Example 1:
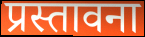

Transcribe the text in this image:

प्रस्तावना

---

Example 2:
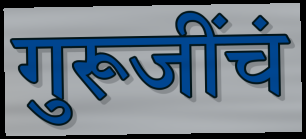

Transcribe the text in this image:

गुरूजींचं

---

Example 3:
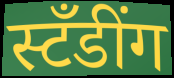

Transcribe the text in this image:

स्टँडींग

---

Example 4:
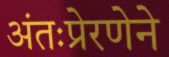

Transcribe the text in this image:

अंतःप्रेरणेने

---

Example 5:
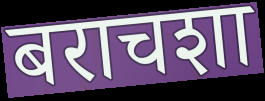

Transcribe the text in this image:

बराचशा